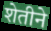
शेतीने